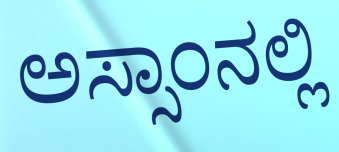
ಅಸ್ಸಾಂನಲ್ಲಿ